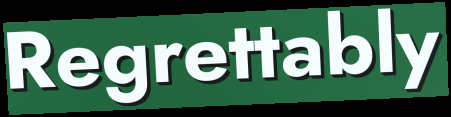
Regrettably